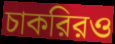
চাকরিরও